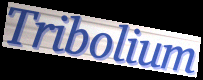
Tribolium